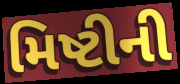
મિષ્ટીની